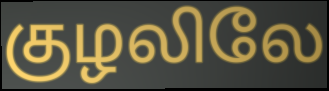
குழலிலே